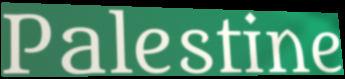
Palestine